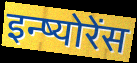
इन्ष्योरेंस